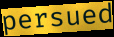
persued